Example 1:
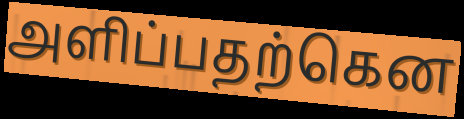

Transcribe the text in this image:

அளிப்பதற்கென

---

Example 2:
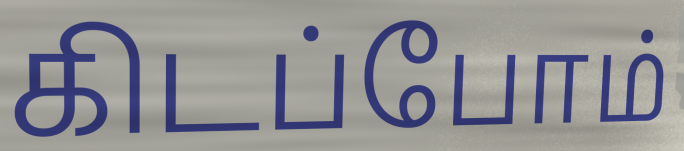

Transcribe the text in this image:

கிடப்போம்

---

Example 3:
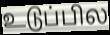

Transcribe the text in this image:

உடுப்பில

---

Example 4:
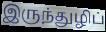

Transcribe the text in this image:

இருந்துழிப்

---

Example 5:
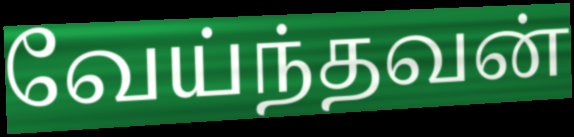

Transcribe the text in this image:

வேய்ந்தவன்